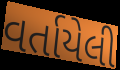
વર્તાયેલી